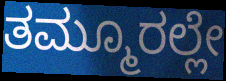
ತಮ್ಮೂರಲ್ಲೇ